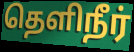
தெளிநீர்